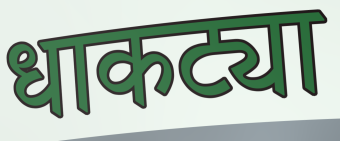
धाकट्या